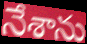
నేశాను